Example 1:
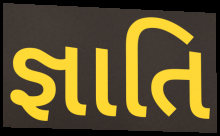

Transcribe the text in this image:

જ્ઞાતિ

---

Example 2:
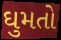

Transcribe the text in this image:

ઘુમતો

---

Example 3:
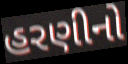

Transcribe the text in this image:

હરણીનો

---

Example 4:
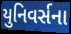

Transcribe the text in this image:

યુનિવર્સના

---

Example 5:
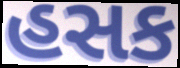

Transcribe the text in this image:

હસક